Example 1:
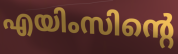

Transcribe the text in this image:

എയിംസിന്റെ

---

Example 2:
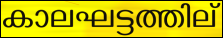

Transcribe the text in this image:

കാലഘട്ടത്തില്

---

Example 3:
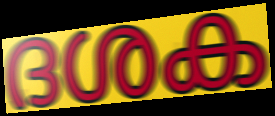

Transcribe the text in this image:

ദശക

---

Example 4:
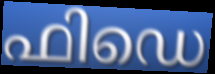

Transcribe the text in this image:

ഫിഡെ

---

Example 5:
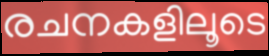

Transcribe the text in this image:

രചനകളിലൂടെ